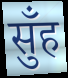
सुँह